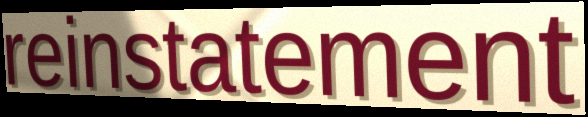
reinstatement